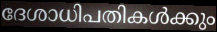
ദേശാധിപതികൾക്കും